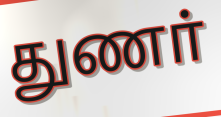
துணர்